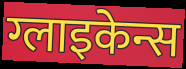
ग्लाइकेन्स